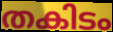
തകിടം